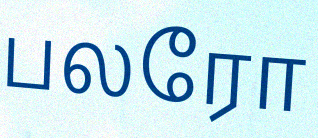
பலரோ